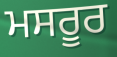
ਮਸਰੂਰ